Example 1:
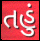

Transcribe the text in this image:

તહું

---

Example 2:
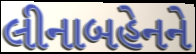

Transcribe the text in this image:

લીનાબહેનને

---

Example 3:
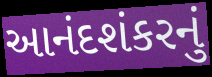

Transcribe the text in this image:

આનંદશંકરનું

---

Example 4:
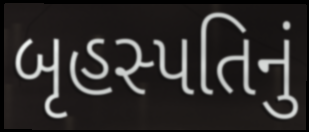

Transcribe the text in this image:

બૃહસ્પતિનું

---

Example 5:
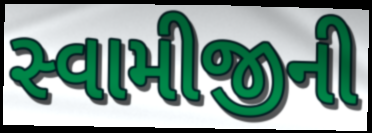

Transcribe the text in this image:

સ્વામીજીની